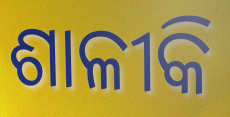
ଶାଳୀକି